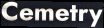
Cemetry